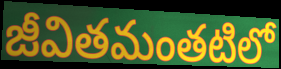
జీవితమంతటిలో